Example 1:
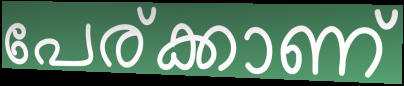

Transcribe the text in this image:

പേര്ക്കാണ്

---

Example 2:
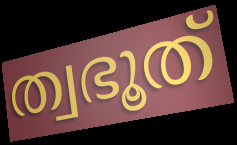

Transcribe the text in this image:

ത്വഭൂത്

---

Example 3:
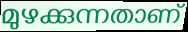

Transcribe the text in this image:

മുഴക്കുന്നതാണ്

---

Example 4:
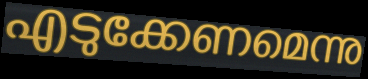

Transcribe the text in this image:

എടുക്കേണമെന്നു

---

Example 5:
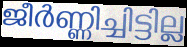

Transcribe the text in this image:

ജീർണ്ണിച്ചിട്ടില്ല